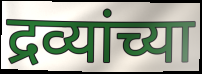
द्रव्यांच्या